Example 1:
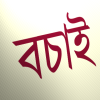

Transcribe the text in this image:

বচাই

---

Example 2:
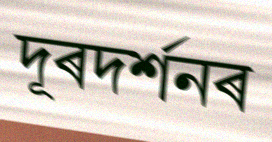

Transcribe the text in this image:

দূৰদৰ্শনৰ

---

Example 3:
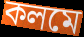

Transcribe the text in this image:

কলমে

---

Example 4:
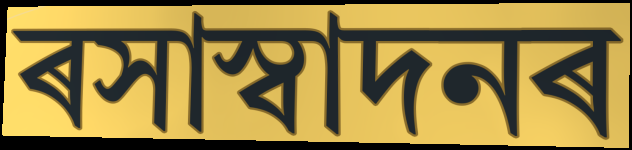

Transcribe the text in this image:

ৰসাস্বাদনৰ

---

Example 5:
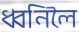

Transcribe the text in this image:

ধ্বনিলৈ